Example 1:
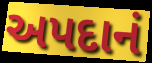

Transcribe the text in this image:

અપદાનં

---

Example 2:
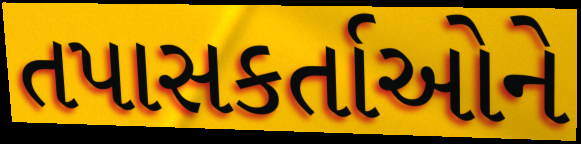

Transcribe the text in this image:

તપાસકર્તાઓને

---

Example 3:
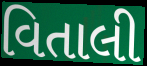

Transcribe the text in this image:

વિતાલી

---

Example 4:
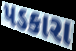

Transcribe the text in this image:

પડકારા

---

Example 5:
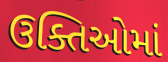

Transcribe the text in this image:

ઉક્તિઓમાં